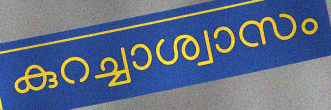
കുറച്ചാശ്വാസം